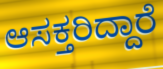
ಆಸಕ್ತರಿದ್ದಾರೆ